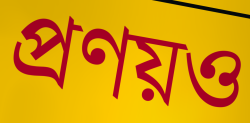
প্রণয়ও